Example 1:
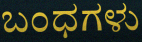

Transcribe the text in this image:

ಬಂಧಗಳು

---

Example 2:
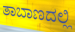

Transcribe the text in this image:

ತಾಬಾಣದಲ್ಲಿ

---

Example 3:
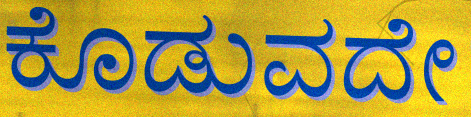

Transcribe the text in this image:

ಕೊಡುವದೇ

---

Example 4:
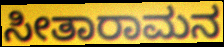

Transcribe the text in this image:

ಸೀತಾರಾಮನ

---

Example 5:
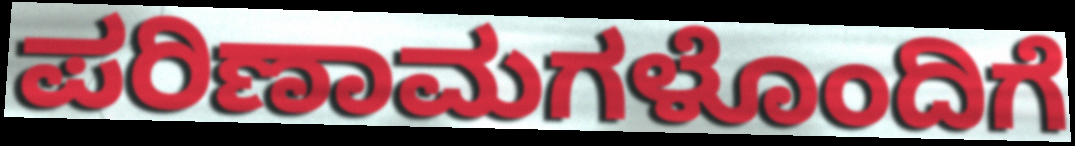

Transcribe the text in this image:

ಪರಿಣಾಮಗಳೊಂದಿಗೆ